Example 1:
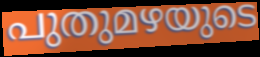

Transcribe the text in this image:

പുതുമഴയുടെ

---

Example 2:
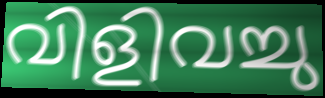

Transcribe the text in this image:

വിളിവച്ചു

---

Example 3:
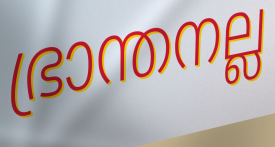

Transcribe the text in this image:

ഭ്രാന്തനല്ല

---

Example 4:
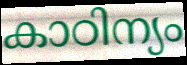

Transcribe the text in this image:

കാഠിന്യം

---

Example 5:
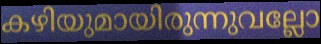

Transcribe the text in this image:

കഴിയുമായിരുന്നുവല്ലോ